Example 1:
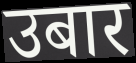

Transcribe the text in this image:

उबार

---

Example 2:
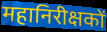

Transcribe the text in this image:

महानिरीक्षकों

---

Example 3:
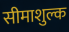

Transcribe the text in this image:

सीमाशुल्क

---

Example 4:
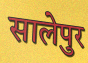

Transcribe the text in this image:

सालेपुर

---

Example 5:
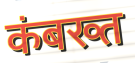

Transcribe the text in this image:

कंबख्त